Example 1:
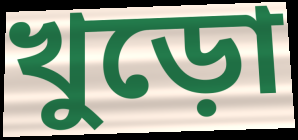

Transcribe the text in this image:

খুড়ো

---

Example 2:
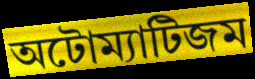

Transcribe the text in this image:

অটোম্যাটিজম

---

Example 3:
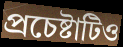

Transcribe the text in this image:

প্রচেষ্টাটিও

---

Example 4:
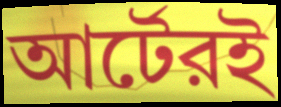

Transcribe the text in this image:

আর্টেরই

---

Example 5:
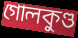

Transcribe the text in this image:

গোলকুণ্ড